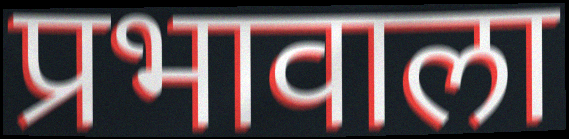
प्रभावाला